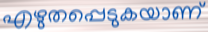
എഴുതപ്പെടുകയാണ്